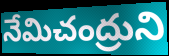
నేమిచంద్రుని